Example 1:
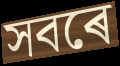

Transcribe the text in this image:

সবৰে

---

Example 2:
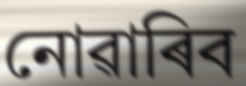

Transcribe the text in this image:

নোৱাৰিব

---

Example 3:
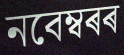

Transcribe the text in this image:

নবেম্বৰৰ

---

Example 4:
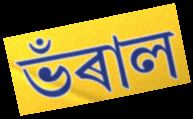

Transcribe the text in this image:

ভঁৰাল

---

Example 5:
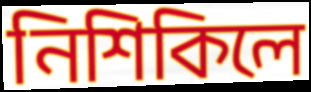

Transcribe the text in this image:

নিশিকিলে